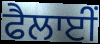
ਫੈਲਾਈਂ